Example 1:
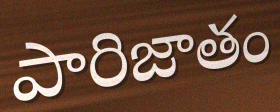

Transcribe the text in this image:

పారిజాతం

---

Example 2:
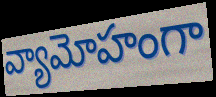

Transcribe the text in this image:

వ్యామోహంగా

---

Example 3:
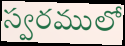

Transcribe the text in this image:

స్వరములో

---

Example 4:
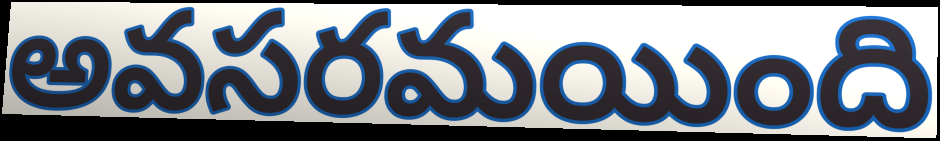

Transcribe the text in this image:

అవసరమయింది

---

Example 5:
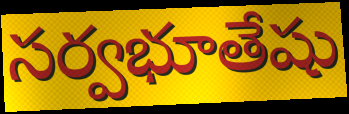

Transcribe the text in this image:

సర్వభూతేషు